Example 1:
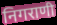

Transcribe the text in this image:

निगराणी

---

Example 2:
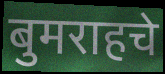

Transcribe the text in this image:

बुमराहचे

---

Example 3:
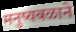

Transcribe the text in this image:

मनुष्यबळाने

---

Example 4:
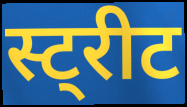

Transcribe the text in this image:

स्ट्रीट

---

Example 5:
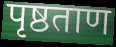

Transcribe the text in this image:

पृष्ठताण